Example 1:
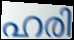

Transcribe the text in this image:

ഹരി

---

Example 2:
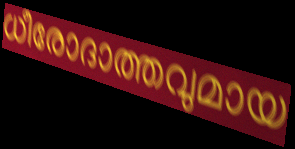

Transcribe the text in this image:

ധീരോദാത്തവുമായ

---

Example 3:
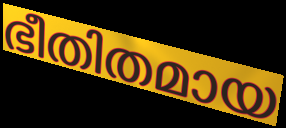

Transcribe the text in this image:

ഭീതിതമായ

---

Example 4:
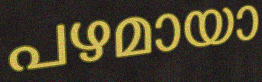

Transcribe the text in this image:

പഴമായാ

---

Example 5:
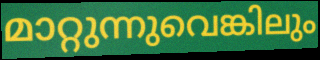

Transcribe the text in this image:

മാറ്റുന്നുവെങ്കിലും